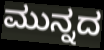
ಮುನ್ನದ